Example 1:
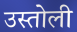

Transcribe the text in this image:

उस्तोली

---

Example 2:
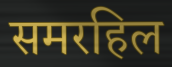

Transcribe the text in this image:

समरहिल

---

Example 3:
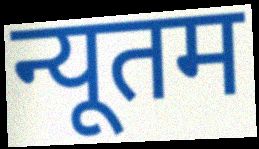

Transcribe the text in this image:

न्यूतम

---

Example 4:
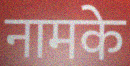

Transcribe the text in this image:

नामके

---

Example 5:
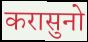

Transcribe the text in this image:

करासुनो